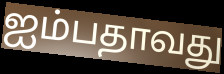
ஐம்பதாவது